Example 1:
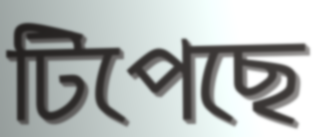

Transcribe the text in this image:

টিপেছে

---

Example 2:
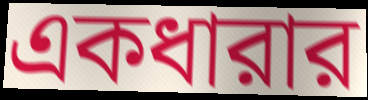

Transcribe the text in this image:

একধারার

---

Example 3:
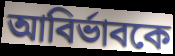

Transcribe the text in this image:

আবির্ভাবকে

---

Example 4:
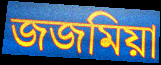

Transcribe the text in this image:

জজমিয়া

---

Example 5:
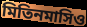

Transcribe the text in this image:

মিতিনমাসিও